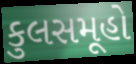
કુલસમૂહો